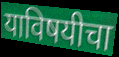
याविषयीचा